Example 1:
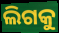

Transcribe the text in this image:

ଲିଗକୁ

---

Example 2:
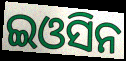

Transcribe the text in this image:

ଇଓସିନ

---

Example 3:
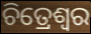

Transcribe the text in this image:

ଚିତ୍ରେଶ୍ୱର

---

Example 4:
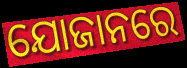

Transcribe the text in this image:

ଯୋଜାନରେ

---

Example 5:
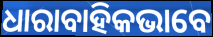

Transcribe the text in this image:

ଧାରାବାହିକଭାବେ